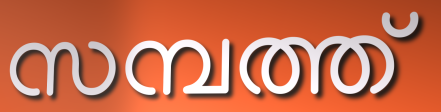
സമ്പത്ത്